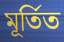
মূৰ্তিত